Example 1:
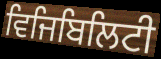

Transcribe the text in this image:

ਵਿਜਿਬਿਲਿਟੀ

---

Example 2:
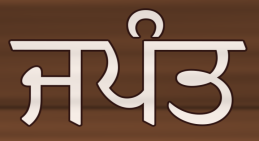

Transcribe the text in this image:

ਜਪੰਤ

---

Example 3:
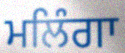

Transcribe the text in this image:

ਮਲਿੰਗਾ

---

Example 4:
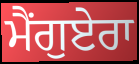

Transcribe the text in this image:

ਮੈਂਗੁਏਰਾ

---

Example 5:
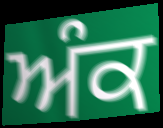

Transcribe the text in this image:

ਅੰਕ